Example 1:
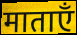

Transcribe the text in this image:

माताएँ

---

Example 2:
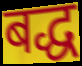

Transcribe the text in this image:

बद्ध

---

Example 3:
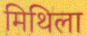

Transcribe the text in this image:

मिथिला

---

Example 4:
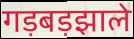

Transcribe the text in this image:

गड़बड़झाले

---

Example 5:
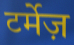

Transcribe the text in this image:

टर्मेज़